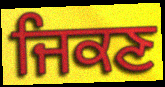
ਜਿਕਣ